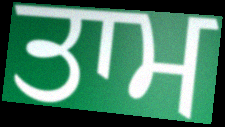
ਤਾਮ